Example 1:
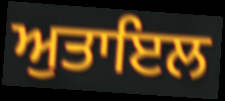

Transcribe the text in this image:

ਅੁਤਾਇਲ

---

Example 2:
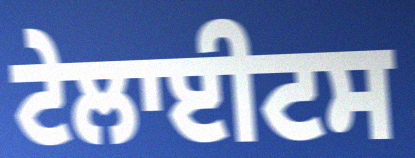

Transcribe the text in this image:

ਟੇਲਾਈਟਸ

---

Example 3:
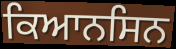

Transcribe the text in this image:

ਕਿਆਨਸਿਨ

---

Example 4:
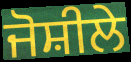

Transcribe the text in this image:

ਜੋਸ਼ੀਲੇ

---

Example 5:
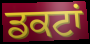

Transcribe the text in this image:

ਡਕਟਾਂ